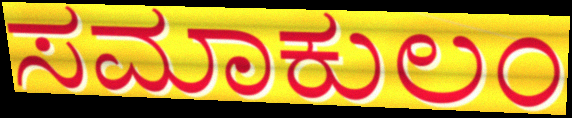
ಸಮಾಕುಲಂ